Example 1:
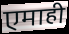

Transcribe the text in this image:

एमाही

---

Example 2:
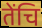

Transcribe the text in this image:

तेंचि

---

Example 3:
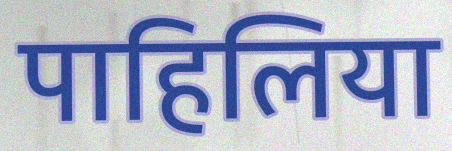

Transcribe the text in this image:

पाहिलिया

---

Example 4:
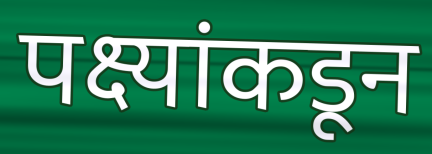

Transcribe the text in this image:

पक्ष्यांकडून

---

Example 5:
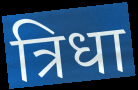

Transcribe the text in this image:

त्रिधा